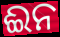
ଈନ